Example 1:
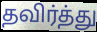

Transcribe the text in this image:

தவிர்த்து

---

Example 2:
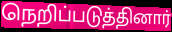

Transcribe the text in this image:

நெறிப்படுத்தினார்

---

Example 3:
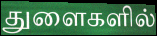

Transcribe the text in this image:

துளைகளில்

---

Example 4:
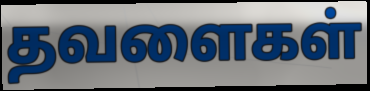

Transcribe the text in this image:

தவளைகள்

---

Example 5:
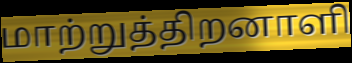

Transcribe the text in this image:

மாற்றுத்திறனாளி